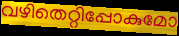
വഴിതെറ്റിപ്പോകുമോ